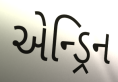
એન્ડ્રિન